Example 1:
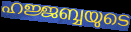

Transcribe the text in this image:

ഹജ്ജബ്ബയുടെ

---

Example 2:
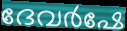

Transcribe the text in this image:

ദേവർഷേ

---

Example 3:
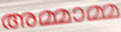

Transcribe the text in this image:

അമ്മാമ്മ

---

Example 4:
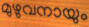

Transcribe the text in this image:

മുഴുവനായും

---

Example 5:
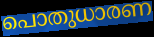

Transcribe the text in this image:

പൊതുധാരണ